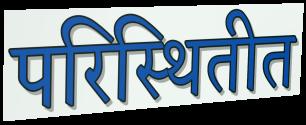
परिस्थितीत